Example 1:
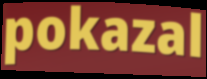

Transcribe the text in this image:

pokazal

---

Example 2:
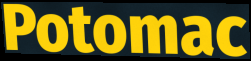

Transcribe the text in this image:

Potomac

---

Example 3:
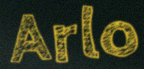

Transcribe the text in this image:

Arlo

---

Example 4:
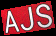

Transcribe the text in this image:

AJS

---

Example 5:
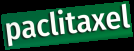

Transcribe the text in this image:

paclitaxel